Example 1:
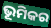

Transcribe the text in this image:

ଭୂମିକର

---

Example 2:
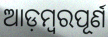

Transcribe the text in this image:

ଆଡ଼ମ୍ବରପୂର୍ଣ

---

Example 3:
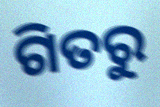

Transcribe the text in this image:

ଗିତରୁ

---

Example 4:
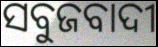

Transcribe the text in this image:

ସବୁଜବାଦୀ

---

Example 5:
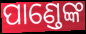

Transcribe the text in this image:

ପାଣ୍ଡେଙ୍କ